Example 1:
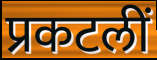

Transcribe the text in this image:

प्रकटलीं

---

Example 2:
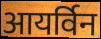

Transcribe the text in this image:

आयर्विन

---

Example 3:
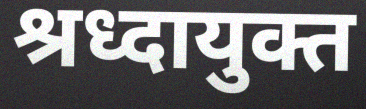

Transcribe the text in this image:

श्रध्दायुक्त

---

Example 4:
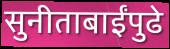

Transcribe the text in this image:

सुनीताबाईंपुढे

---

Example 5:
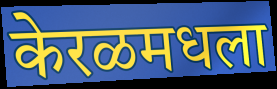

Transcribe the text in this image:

केरळमधला